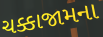
ચક્કાજામના